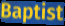
Baptist